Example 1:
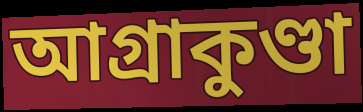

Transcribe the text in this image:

আগ্রাকুণ্ডা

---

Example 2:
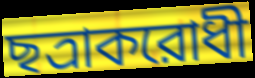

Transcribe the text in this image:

ছত্রাকরোধী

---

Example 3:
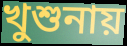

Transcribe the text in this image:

খুশুনায়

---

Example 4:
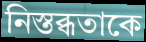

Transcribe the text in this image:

নিস্তব্ধতাকে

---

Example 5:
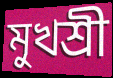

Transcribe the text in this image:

মুখশ্রী